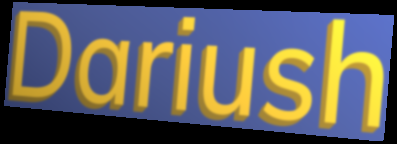
Dariush